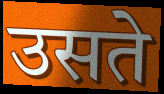
उसते